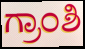
ಗ್ರಾಂಶಿ